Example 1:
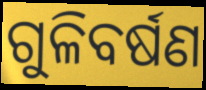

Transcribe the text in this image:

ଗୁଳିବର୍ଷଣ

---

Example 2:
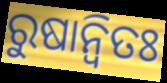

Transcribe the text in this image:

ରୁଷାନ୍ଵିତଃ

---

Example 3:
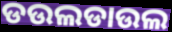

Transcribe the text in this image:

ଡଉଲଡାଉଲ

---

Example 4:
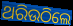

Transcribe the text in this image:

ଥରିଉଠିଲେ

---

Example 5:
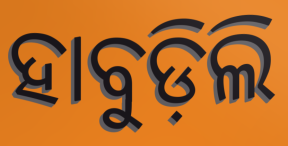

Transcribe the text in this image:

ହାବୁଡ଼ିଲି